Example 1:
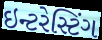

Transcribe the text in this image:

ઇન્ટરેસ્ટિંગ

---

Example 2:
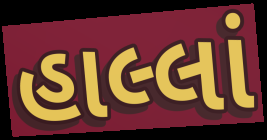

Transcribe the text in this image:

હાલ્લાં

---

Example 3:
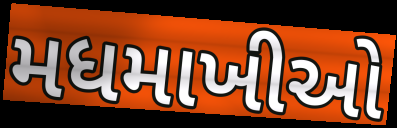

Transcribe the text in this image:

મધમાખીઓ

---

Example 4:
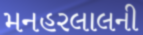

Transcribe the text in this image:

મનહરલાલની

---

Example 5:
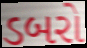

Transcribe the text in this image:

ડબરો